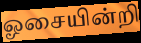
ஓசையின்றி